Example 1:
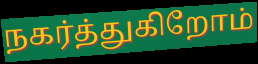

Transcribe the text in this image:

நகர்த்துகிறோம்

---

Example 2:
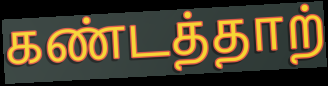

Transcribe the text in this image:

கண்டத்தாற்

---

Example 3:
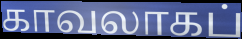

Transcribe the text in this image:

காவலாகப்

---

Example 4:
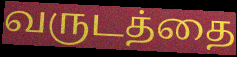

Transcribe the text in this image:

வருடத்தை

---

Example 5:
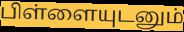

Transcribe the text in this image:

பிள்ளையுடனும்